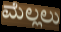
ಮೆಲ್ಲಲು